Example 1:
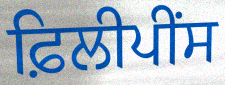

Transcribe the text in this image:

ਫ਼ਿਲੀਪੀਂਸ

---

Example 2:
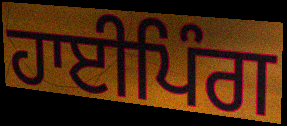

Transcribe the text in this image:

ਹਾਈਪਿੰਗ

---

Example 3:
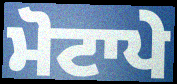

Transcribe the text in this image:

ਮੋਟਾਪੇ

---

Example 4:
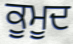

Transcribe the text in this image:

ਕੂਮੂਦ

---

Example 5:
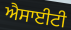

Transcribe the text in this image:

ਐਸਾਈਟੀ